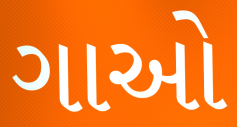
ગાઓ